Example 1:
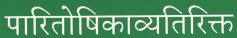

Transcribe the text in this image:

पारितोषिकाव्यतिरिक्त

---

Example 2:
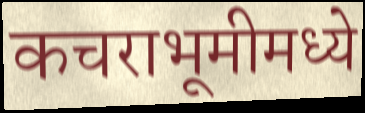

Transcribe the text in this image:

कचराभूमीमध्ये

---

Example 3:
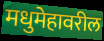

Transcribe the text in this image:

मधुमेहावरील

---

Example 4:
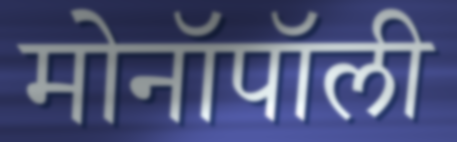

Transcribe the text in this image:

मोनॉपॉली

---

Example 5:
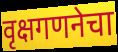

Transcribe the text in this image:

वृक्षगणनेचा